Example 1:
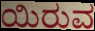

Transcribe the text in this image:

ಯಿರುವ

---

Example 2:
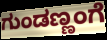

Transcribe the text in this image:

ಗುಂಡಣ್ಣಂಗೆ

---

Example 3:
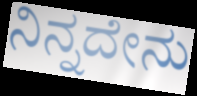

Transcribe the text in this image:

ನಿನ್ನದೇನು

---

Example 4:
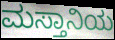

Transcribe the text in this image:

ಮಸ್ತಾನಿಯ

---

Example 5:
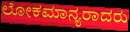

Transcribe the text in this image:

ಲೋಕಮಾನ್ಯರಾದರು